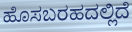
ಹೊಸಬರಹದಲ್ಲಿದೆ